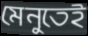
মেনুতেই